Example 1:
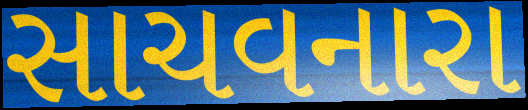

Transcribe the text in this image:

સાચવનારા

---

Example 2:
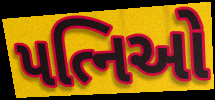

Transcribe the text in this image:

પત્નિઓ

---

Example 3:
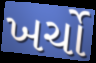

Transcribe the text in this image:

ખર્ચો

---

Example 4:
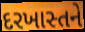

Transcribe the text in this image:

દરખાસ્તને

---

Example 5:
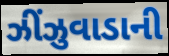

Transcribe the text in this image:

ઝીંઝુવાડાની